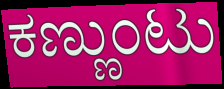
ಕಣ್ಣುಂಟು